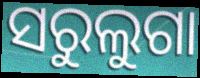
ସରୁଲୁଗା